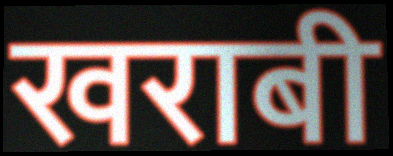
खराबी